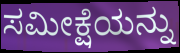
ಸಮೀಕ್ಷೆಯನ್ನು